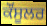
ਕੌਂਸੂਲਰ